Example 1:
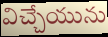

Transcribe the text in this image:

విచ్చేయును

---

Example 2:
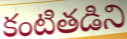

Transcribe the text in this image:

కంటితడిని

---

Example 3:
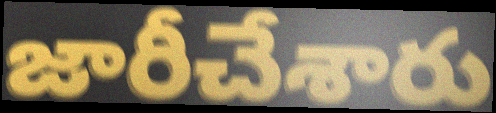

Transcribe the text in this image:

జారీచేశారు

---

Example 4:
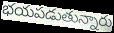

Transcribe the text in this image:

భయపడుతున్నారు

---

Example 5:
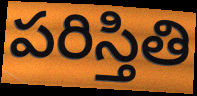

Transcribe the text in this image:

పరిస్తితి